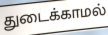
துடைக்காமல்